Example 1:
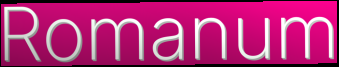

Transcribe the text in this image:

Romanum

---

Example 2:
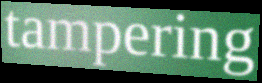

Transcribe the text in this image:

tampering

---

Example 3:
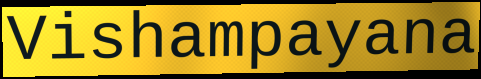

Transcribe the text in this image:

Vishampayana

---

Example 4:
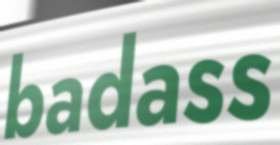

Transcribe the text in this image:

badass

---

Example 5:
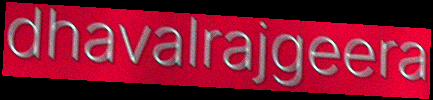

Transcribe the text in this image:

dhavalrajgeera